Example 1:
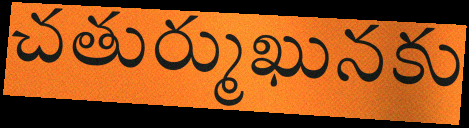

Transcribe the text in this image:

చతుర్ముఖునకు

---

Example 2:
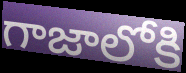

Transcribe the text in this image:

గాజాలోకి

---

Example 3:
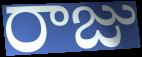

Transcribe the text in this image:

రాజు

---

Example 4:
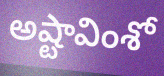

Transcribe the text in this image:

అష్టావింశో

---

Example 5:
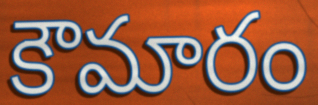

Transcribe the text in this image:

కౌమారం